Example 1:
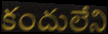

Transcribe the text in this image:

కందులేని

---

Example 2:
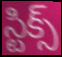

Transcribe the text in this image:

స్టిక్స్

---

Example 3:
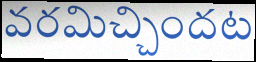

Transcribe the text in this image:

వరమిచ్చిందట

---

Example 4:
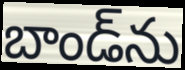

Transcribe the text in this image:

బాండ్‌ను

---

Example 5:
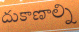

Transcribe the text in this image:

దుకాణాల్ని